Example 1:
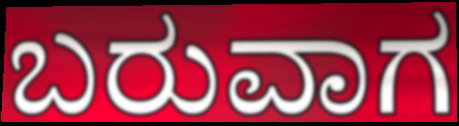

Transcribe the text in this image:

ಬರುವಾಗ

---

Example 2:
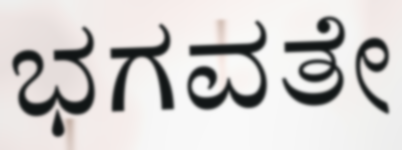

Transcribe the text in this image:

ಭಗವತೇ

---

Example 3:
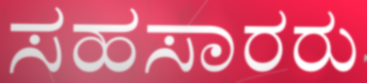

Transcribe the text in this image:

ಸಹಸಾರರು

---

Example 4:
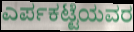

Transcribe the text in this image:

ಎರ್ಪಕಟ್ಟೆಯವರ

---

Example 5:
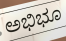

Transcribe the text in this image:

ಅಭಿಭೂ